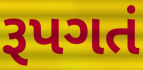
રૂપગતં